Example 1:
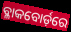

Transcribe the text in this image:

ବ୍ଳାକବୋର୍ଡ଼ରେ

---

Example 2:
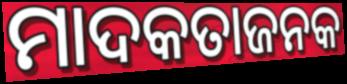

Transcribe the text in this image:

ମାଦକତାଜନକ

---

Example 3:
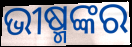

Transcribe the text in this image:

ଭୀଷ୍ମଙ୍କର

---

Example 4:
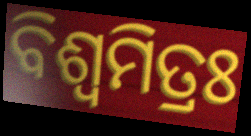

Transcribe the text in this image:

ବିଶ୍ବମିତ୍ରଃ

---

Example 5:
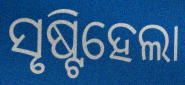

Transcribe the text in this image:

ସୃଷ୍ଟିହେଲା